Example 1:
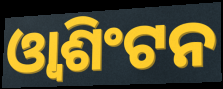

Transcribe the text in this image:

ଓ୍ୱାଶିଂଟନ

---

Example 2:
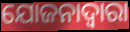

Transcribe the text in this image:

ଯୋଜନାଦ୍ୱାରା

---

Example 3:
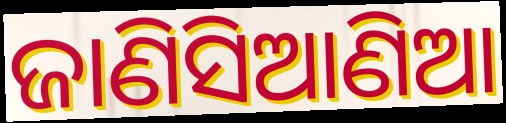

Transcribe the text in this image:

ଜାଣିସିଆଣିଆ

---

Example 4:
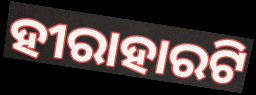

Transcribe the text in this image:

ହୀରାହାରଟି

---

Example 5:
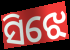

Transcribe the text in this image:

ସିଝେ